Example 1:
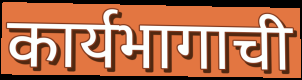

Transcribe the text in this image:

कार्यभागाची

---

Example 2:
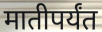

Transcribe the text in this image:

मातीपर्यंत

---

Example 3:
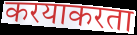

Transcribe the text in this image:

करयाकरता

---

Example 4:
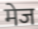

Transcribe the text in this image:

मेज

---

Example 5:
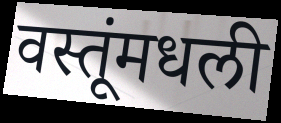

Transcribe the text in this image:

वस्तूंमधली